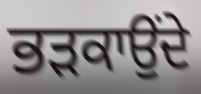
ਭੜਕਾਉਂਦੇ